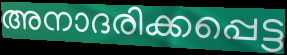
അനാദരിക്കപ്പെട്ട